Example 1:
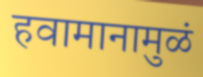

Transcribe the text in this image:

हवामानामुळं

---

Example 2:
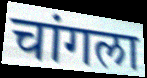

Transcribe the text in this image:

चांगला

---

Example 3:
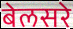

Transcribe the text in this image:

बेलसरे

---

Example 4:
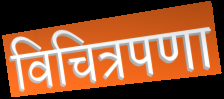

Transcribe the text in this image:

विचित्रपणा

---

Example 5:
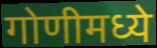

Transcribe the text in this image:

गोणीमध्ये